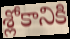
శ్లోకానికి